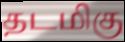
தடமிகு